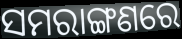
ସମରାଙ୍ଗଣରେ